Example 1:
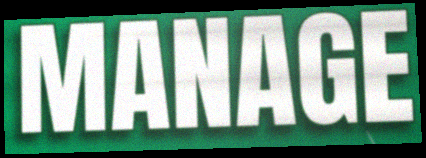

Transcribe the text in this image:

MANAGE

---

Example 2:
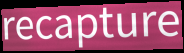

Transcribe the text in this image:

recapture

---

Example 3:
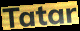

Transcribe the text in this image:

Tatar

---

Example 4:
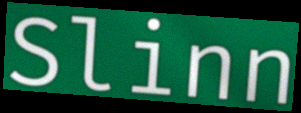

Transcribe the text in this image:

Slinn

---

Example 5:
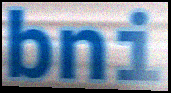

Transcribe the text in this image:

bni